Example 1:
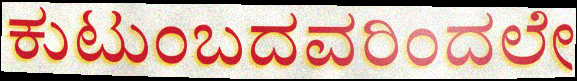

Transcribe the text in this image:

ಕುಟುಂಬದವರಿಂದಲೇ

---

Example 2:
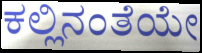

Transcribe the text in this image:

ಕಲ್ಲಿನಂತೆಯೇ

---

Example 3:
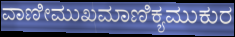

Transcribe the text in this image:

ವಾಣೀಮುಖಮಾಣಿಕ್ಯಮುಕುರ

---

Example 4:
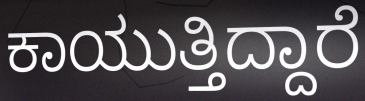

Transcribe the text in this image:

ಕಾಯುತ್ತಿದ್ದಾರೆ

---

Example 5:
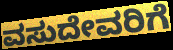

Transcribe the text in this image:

ವಸುದೇವರಿಗೆ